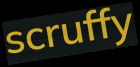
scruffy